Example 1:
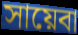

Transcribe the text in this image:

সায়েবা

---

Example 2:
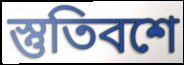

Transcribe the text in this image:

স্তুতিবশে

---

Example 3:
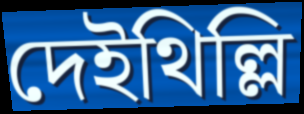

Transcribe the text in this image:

দেইথিল্লি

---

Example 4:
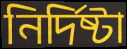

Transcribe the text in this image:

নির্দিষ্টা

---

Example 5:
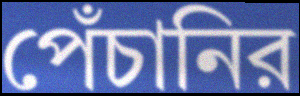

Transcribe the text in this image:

পেঁচানির